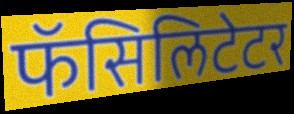
फॅसिलिटेटर